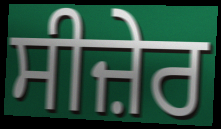
ਸੀਜ਼ੇਰ